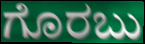
ಗೊರಬು